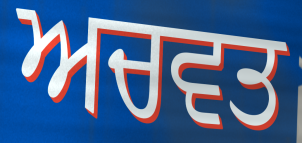
ਅਚਵਤ